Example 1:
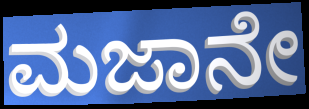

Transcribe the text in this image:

ಮಜಾನೇ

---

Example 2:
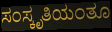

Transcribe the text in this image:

ಸಂಸ್ಕೃತಿಯಂತೂ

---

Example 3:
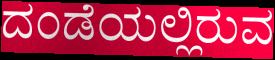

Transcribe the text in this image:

ದಂಡೆಯಲ್ಲಿರುವ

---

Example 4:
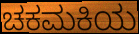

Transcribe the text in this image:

ಚಕಮಕಿಯ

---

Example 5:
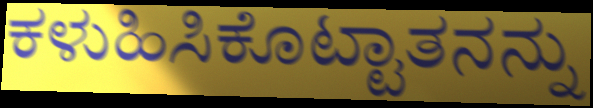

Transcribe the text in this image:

ಕಳುಹಿಸಿಕೊಟ್ಟಾತನನ್ನು